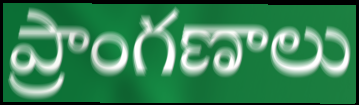
ప్రాంగణాలు